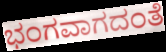
ಭಂಗವಾಗದಂತೆ